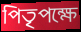
পিতৃপক্ষে